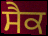
ਸੈਕ